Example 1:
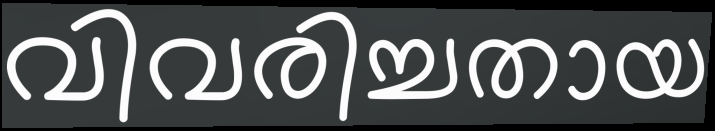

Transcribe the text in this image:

വിവരിച്ചതായ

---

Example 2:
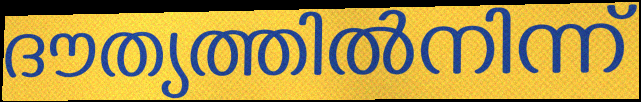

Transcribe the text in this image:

ദൗത്യത്തിൽനിന്ന്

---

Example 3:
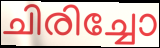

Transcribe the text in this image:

ചിരിച്ചോ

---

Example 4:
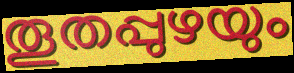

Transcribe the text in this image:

തൂതപ്പുഴയും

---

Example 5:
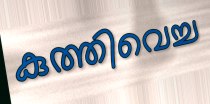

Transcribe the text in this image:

കുത്തിവെച്ച